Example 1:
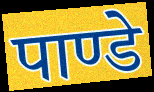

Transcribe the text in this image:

पाण्डे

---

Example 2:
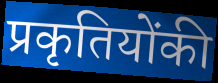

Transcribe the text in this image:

प्रकृतियोंकी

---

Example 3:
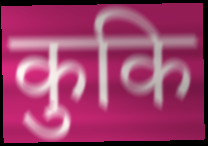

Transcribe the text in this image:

कुकि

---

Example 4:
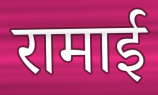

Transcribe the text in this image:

रामाई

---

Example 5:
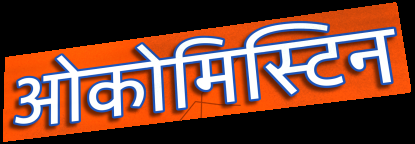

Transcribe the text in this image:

ओकोमिस्टिन